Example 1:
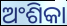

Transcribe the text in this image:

ଅଂଶିକା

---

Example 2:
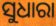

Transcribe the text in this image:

ସୁଧାରା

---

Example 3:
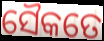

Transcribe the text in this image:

ସୈକତେ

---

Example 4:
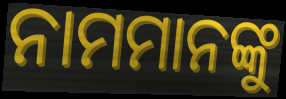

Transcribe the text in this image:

ନାମମାନଙ୍କୁ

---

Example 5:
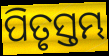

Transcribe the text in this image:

ପିତୃସ୍ତମ୍ଭ